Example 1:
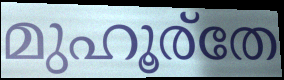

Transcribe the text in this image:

മുഹൂര്തേ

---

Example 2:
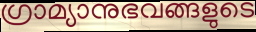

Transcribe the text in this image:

ഗ്രാമ്യാനുഭവങ്ങളുടെ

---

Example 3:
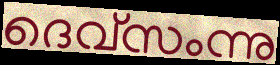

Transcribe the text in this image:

ദെവ്സംന്നു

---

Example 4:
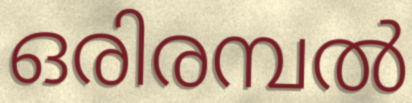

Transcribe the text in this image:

ഒരിരമ്പൽ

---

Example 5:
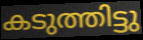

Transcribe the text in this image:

കടുത്തിട്ടു